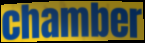
chamber